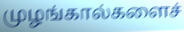
முழங்கால்களைச்